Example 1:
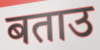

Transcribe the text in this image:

बताउ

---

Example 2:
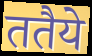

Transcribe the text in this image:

ततैये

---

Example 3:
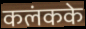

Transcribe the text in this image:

कलंकके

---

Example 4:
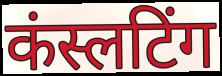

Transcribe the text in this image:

कंस्लटिंग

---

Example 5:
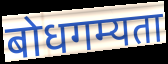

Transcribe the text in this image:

बोधगम्यता